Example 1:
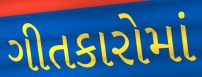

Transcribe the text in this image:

ગીતકારોમાં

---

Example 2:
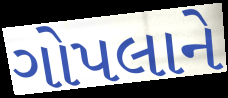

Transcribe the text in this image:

ગોપલાને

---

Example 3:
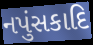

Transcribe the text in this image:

નપુંસકાદિ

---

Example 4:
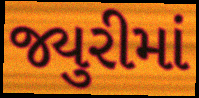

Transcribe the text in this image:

જ્યુરીમાં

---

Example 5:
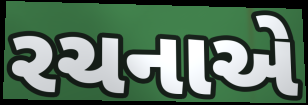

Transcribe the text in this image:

રચનાએ